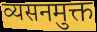
व्यसनमुक्त